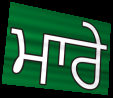
ਮਾਰੇ